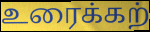
உரைக்கற்